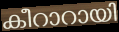
കീറാറായി